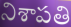
నిశాపతి